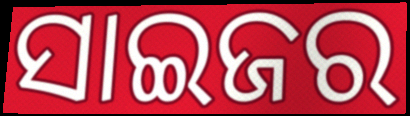
ସାଇଜର